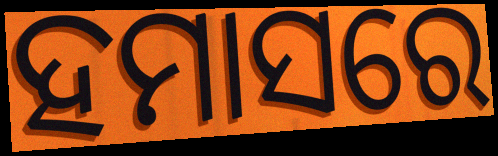
ହମାସରେ